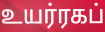
உயர்ரகப்